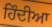
ਹਿੰਦੀਆ